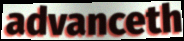
advanceth